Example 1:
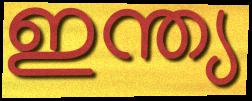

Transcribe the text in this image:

ഇന്ത്യ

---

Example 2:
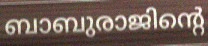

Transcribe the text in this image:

ബാബുരാജിന്റെ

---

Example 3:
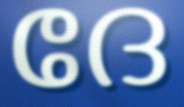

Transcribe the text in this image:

ദേ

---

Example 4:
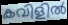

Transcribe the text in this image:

കവിളിൽ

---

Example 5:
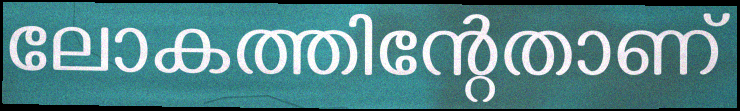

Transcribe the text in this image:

ലോകത്തിന്റേതാണ്